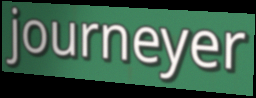
journeyer